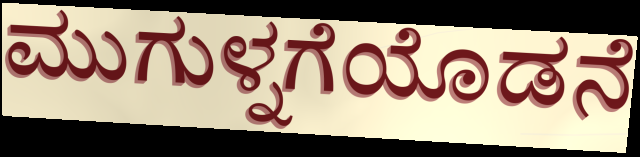
ಮುಗುಳ್ನಗೆಯೊಡನೆ